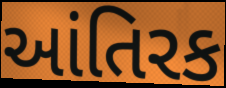
આંતિરક